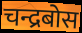
चन्द्रबोस